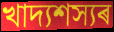
খাদ্যশস্যৰ